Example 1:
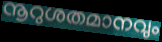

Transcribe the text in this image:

നൂറുശതമാനവും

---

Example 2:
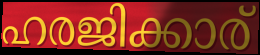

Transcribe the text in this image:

ഹരജിക്കാര്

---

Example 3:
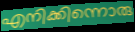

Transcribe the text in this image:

എനിക്കിന്നൊരു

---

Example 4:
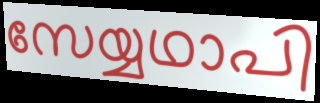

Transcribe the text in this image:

സേയ്യഥാപി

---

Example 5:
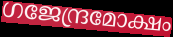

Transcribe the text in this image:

ഗജേന്ദ്രമോക്ഷം